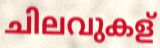
ചിലവുകള്